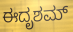
ಈದೃಶಮ್